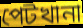
পেটখানা